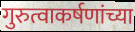
गुरुत्वाकर्षणांच्या